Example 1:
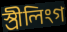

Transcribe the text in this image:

স্ত্ৰীলিংগ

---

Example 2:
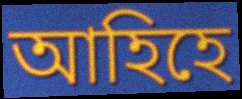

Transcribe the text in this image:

আহিহে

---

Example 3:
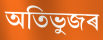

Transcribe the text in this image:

অতিভুজৰ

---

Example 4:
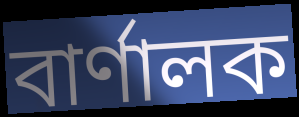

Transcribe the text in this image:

বাৰ্ণালক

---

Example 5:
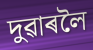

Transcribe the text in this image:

দুৱাৰলৈ